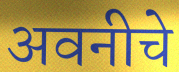
अवनीचे